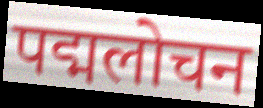
पद्मलोचन